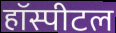
हॉस्पीटल